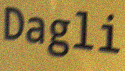
Dagli